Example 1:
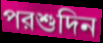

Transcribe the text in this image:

পরশুদিন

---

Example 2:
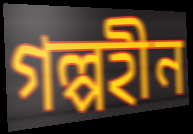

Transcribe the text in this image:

গল্পহীন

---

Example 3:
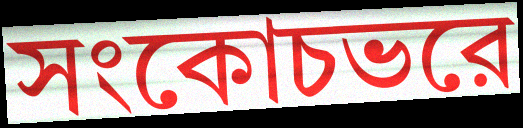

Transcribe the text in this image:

সংকোচভরে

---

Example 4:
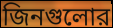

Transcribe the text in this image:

জিনগুলোর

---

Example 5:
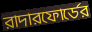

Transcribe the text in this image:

রাদারফোর্ডের